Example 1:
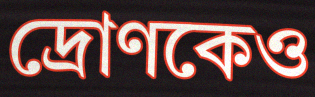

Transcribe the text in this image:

দ্রোণকেও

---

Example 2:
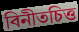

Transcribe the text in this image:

বিনীতচিত্ত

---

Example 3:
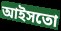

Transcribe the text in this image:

আইসতো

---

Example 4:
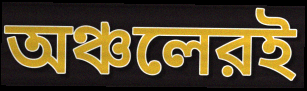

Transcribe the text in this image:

অঞ্চলেরই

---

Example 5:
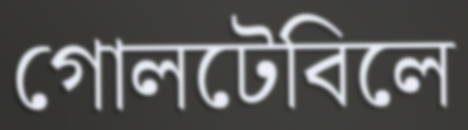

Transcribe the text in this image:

গোলটেবিলে